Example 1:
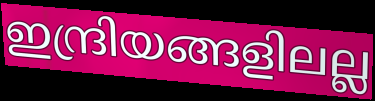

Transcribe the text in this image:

ഇന്ദ്രിയങ്ങളിലല്ല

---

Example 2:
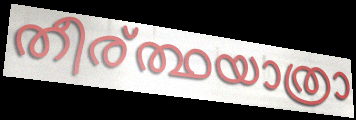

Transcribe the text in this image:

തീര്ത്ഥയാത്രാ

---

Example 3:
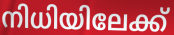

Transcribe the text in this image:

നിധിയിലേക്ക്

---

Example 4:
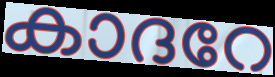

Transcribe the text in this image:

കാദറേ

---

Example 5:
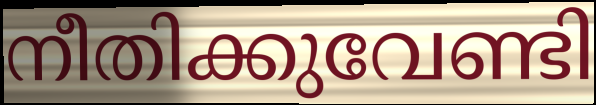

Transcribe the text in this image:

നീതിക്കുവേണ്ടി